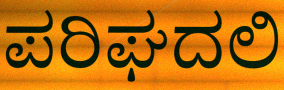
ಪರಿಘದಲಿ